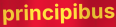
principibus